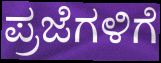
ಪ್ರಜೆಗಳಿಗೆ